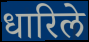
धारिले